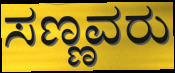
ಸಣ್ಣವರು